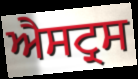
ਐਸਟ੍ਰਸ